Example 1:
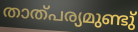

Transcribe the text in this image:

താത്പര്യമുണ്ടു്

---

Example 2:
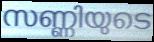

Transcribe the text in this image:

സണ്ണിയുടെ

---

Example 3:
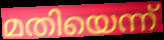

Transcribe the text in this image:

മതിയെന്ന്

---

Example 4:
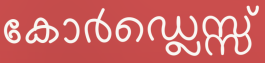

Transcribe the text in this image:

കോർഡ്ലെസ്സ്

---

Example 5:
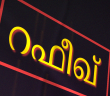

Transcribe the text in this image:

റഫീഖ്